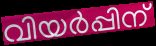
വിയർപ്പിന്